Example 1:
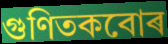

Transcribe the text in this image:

গুণিতকবোৰ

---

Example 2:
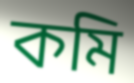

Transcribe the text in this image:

কমি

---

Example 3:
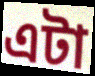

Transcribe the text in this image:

এটা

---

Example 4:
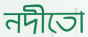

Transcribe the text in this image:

নদীতো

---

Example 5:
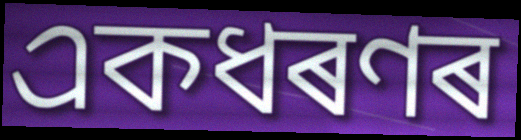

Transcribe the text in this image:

একধৰণৰ